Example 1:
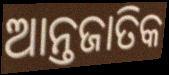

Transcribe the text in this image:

ଆନ୍ତଜାତିକ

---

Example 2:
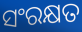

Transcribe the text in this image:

ସଂରକ୍ଷତ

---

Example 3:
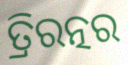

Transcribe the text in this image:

ତ୍ରିରତ୍ନର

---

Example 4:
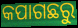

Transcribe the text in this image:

କପାଗଛରୁ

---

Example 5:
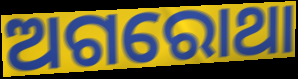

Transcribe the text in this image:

ଅଗରୋଥା